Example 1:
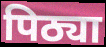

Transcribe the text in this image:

पिठ्या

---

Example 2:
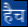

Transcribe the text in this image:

हैच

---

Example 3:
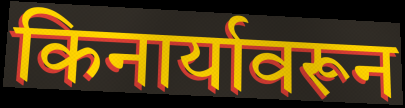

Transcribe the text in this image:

किनार्यावरून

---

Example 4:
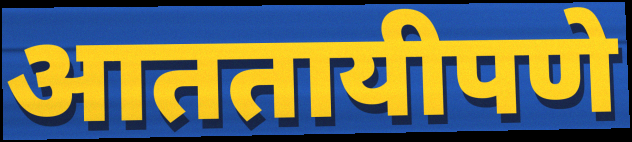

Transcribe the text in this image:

आततायीपणे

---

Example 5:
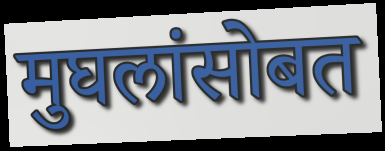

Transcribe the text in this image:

मुघलांसोबत